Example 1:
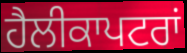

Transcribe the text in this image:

ਹੈਲੀਕਾਪਟਰਾਂ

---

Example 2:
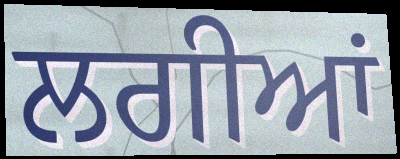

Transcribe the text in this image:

ਲਗੀਆਂ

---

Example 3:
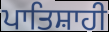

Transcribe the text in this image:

ਪਾਤਿਸ਼ਾਹੀ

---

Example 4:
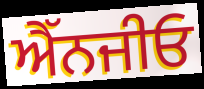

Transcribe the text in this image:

ਐੱਨਜੀਓ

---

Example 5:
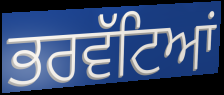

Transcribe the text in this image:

ਭਰਵੱਟਿਆਂ